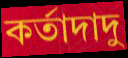
কর্তাদাদু